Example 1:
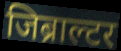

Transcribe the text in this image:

जिब्राल्टर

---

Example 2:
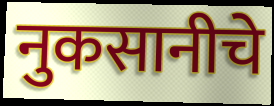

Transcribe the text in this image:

नुकसानीचे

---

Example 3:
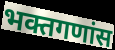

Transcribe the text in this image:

भक्तगणांस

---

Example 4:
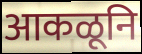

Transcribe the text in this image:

आकळूनि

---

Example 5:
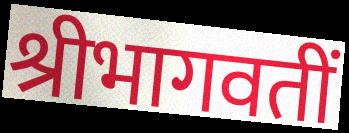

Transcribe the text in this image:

श्रीभागवतीं